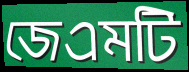
জেএমটি